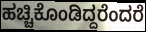
ಹಚ್ಚಿಕೊಂಡಿದ್ದರೆಂದರೆ